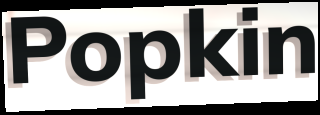
Popkin